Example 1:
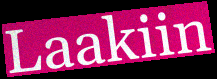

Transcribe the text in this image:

Laakiin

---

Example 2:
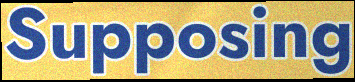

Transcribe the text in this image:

Supposing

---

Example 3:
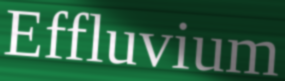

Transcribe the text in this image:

Effluvium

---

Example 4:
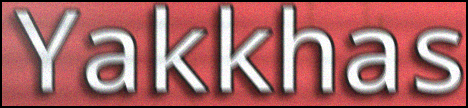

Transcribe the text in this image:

Yakkhas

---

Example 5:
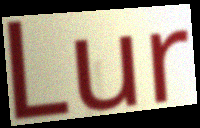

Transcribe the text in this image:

Lur